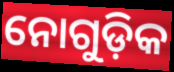
ନୋଗୁଡ଼ିକ